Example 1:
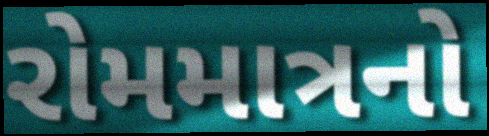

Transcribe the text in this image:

રોમમાત્રનો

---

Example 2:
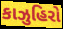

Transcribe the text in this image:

કાઝુહિરો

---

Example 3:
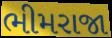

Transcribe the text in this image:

ભીમરાજા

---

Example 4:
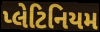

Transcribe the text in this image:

પ્લેટિનિયમ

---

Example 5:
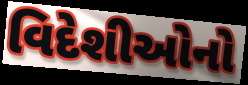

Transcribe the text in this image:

વિદેશીઓનો